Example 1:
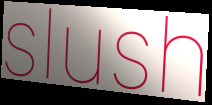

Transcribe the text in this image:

slush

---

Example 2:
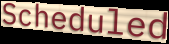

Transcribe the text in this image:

Scheduled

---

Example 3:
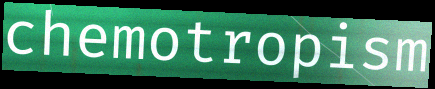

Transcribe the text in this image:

chemotropism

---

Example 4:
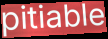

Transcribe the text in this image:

pitiable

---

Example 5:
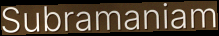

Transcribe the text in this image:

Subramaniam